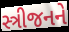
સ્ત્રીજનને